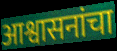
आश्वासनांचा